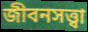
জীবনসত্ত্বা